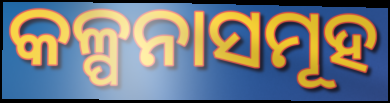
କଳ୍ପନାସମୂହ